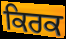
ਕਿਰਕ